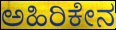
ಅಹಿರಿಕೇನ